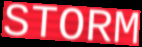
STORM